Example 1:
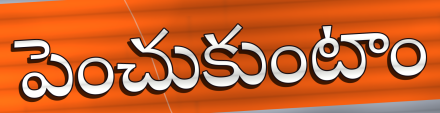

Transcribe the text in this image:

పెంచుకుంటాం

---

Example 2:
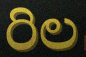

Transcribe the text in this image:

రిల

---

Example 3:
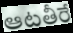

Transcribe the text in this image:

ఆటతీరే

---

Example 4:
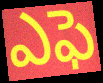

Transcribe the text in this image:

ఎఫె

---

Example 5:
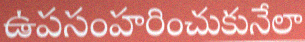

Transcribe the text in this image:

ఉపసంహరించుకునేలా